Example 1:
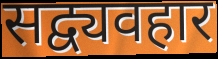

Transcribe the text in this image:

सद्व्यवहार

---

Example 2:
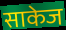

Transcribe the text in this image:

साकेज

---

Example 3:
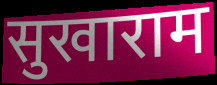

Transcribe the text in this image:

सुखाराम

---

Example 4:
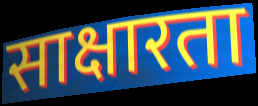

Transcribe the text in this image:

साक्षारता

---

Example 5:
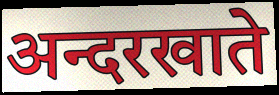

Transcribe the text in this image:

अन्दरखाते